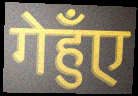
गेहुँए